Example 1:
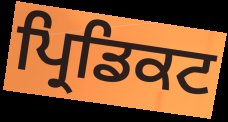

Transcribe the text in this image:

ਪ੍ਰਿਡਿਕਟ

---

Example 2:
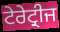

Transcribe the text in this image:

ਟੇਰੇਟ੍ਰੀਜ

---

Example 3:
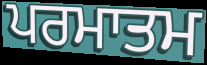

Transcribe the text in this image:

ਪਰਮਾਤਮ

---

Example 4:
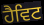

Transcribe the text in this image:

ਹੈਵਿਟ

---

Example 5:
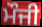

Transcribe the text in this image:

ਮੌਜੀ